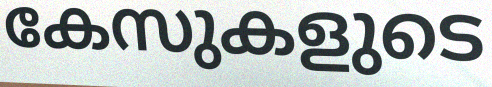
കേസുകളുടെ